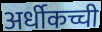
अर्धीकच्ची